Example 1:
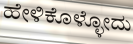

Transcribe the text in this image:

ಹೇಳಿಕೊಳ್ಳೋದು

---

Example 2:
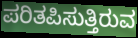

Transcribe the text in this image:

ಪರಿತಪಿಸುತ್ತಿರುವ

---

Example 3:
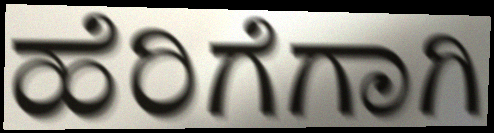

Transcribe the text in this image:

ಹೆರಿಗೆಗಾಗಿ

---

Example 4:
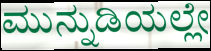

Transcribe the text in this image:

ಮುನ್ನುಡಿಯಲ್ಲೇ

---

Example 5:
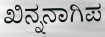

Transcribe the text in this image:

ಖಿನ್ನನಾಗಿಪ